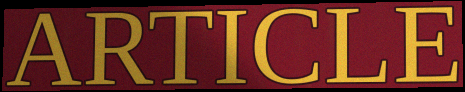
ARTICLE